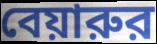
বেয়ারুর